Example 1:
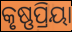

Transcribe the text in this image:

କୃଷ୍ଣପ୍ରିୟା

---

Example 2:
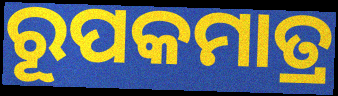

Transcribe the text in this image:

ରୂପକମାତ୍ର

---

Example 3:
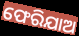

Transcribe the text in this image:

ଫେରିଯାଅ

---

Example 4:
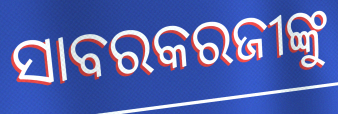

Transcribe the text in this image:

ସାବରକରଜୀଙ୍କୁ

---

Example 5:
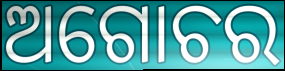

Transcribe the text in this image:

ଅଗୋଚର